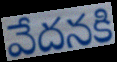
వేదనకి